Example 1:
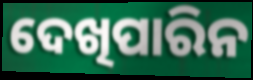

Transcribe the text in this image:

ଦେଖିପାରିନ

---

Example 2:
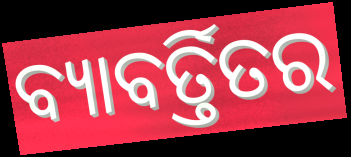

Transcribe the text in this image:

ବ୍ୟାବର୍ତ୍ତିତର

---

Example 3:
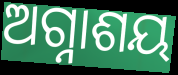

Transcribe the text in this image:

ଅଗ୍ନାଶୟ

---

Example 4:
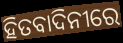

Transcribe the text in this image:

ହିତବାଦିନୀରେ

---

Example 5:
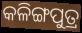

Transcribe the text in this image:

କଳିଙ୍ଗପୁତ୍ର